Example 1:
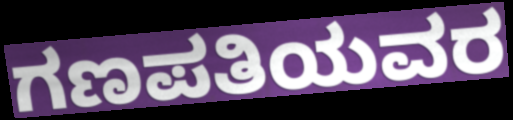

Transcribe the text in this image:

ಗಣಪತಿಯವರ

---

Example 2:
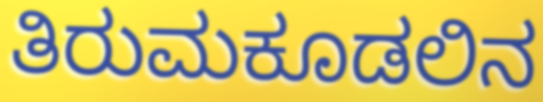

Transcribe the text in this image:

ತಿರುಮಕೂಡಲಿನ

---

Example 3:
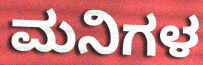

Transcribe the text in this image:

ಮನಿಗಳ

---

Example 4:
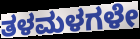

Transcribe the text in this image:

ತಳಮಳಗಳೇ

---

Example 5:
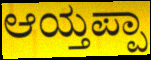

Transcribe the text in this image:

ಆಯ್ತಪ್ಪಾ